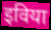
इविया